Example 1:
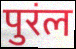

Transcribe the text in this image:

पुरंल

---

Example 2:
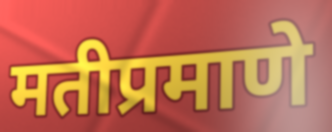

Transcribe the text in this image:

मतीप्रमाणे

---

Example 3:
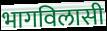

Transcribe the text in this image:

भागविलासी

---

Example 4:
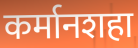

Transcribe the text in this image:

कर्मानशहा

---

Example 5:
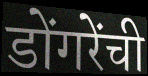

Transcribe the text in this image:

डोंगरेंची